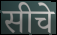
सीचे